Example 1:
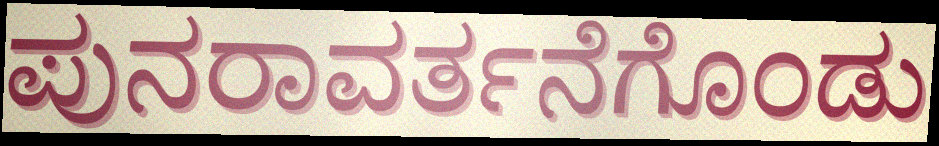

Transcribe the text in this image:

ಪುನರಾವರ್ತನೆಗೊಂಡು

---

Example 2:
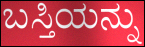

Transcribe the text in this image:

ಬಸ್ತಿಯನ್ನು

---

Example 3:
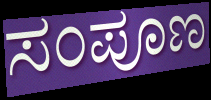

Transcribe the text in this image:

ಸಂಪೂಣ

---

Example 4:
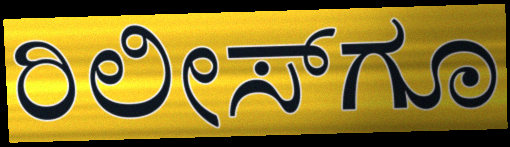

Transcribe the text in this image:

ರಿಲೀಸ್‌ಗೂ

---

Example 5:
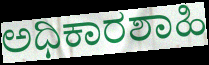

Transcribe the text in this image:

ಅಧಿಕಾರಶಾಹಿ